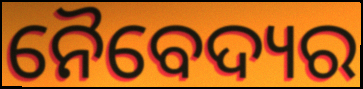
ନୈବେଦ୍ୟର